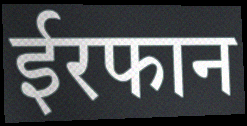
ईरफान